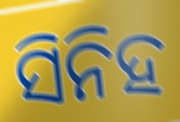
ସିନିହ